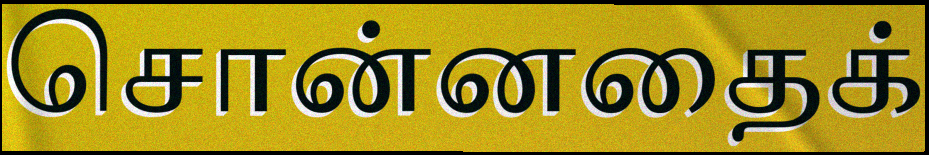
சொன்னதைக்